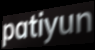
patiyun